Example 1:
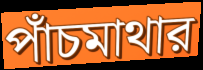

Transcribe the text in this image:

পাঁচমাথার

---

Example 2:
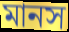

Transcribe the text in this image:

মানস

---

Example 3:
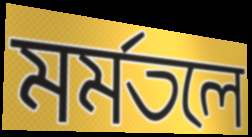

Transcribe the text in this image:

মর্মতলে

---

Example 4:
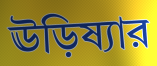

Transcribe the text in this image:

ঊড়িষ্যার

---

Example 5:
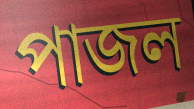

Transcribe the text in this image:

পাজল